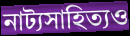
নাট্যসাহিত্যও